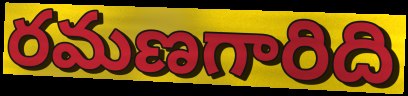
రమణగారిది